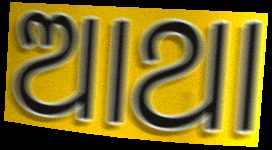
ଆଥା